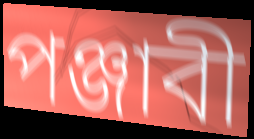
পঞ্জাবী